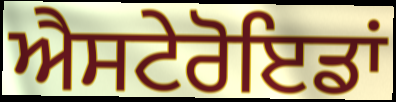
ਐਸਟੇਰੋਇਡਾਂ